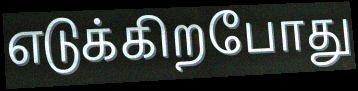
எடுக்கிறபோது